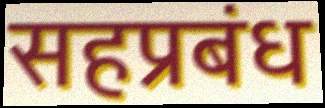
सहप्रबंध